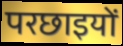
परछाइयों